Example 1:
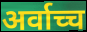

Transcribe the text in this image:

अर्वाच्च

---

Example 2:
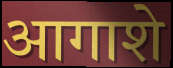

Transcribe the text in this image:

आगाशे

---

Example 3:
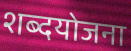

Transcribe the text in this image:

शब्दयोजना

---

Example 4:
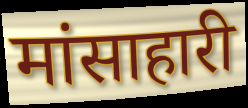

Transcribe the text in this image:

मांसाहारी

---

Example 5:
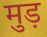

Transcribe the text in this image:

मुड़